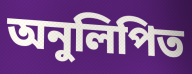
অনুলিপিত